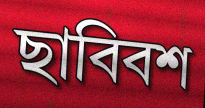
ছাবিবশ